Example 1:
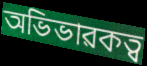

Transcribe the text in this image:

অভিভাৱকত্ব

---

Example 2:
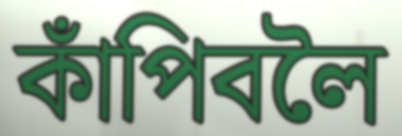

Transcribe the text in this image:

কাঁপিবলৈ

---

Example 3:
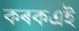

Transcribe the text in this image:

কৰকএই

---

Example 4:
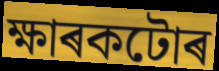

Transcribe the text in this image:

ক্ষাৰকটোৰ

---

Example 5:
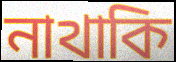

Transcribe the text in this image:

নাথাকি